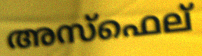
അസ്ഫെല്